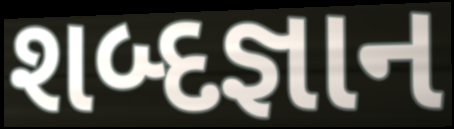
શબ્દજ્ઞાન